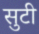
सुटी